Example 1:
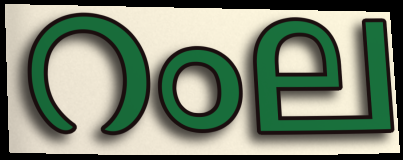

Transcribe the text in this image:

റംല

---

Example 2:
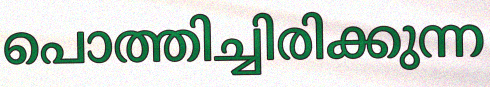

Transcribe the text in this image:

പൊത്തിച്ചിരിക്കുന്ന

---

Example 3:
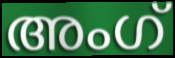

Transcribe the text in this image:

അംഗ്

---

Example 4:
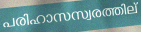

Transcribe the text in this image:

പരിഹാസസ്വരത്തില്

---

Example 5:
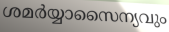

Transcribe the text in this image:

ശമർയ്യാസൈന്യവും